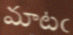
మాటఁ